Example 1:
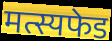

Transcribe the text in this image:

मत्स्यफेड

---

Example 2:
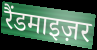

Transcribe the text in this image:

रैंडमाइज़र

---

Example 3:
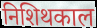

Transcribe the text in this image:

निशिथकाल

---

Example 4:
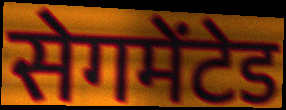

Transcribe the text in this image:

सेगमेंटेड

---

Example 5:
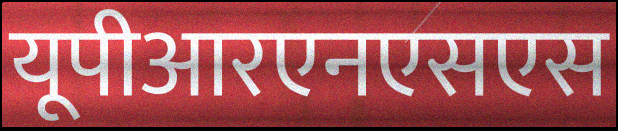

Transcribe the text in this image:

यूपीआरएनएसएस